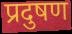
प्रदुषण